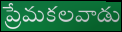
ప్రేమకలవాడు